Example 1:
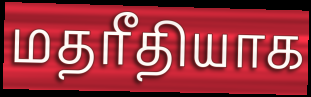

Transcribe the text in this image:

மதரீதியாக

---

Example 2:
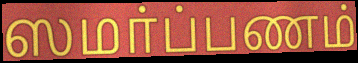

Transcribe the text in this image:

ஸமர்ப்பணம்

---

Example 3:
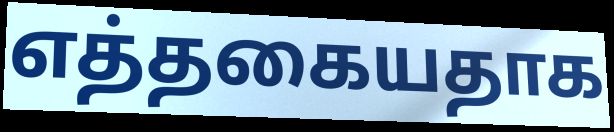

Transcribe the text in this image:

எத்தகையதாக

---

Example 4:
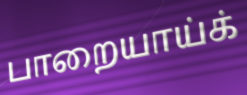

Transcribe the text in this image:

பாறையாய்க்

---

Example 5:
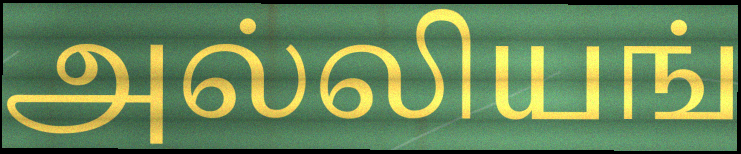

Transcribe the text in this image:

அல்லியங்